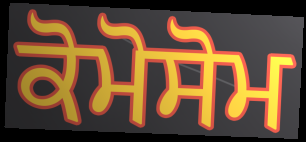
ਕੋਮੋਸੋਮ